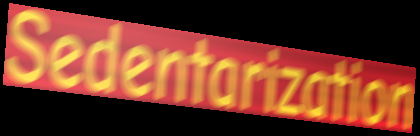
Sedentarization